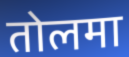
तोलमा